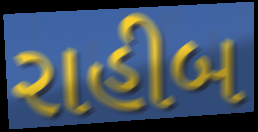
રાહીબ